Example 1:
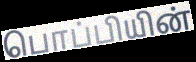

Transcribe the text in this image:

பொப்பியின்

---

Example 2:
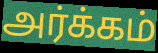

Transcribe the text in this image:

அர்க்கம்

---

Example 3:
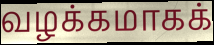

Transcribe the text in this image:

வழக்கமாகக்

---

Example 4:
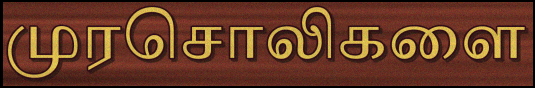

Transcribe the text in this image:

முரசொலிகளை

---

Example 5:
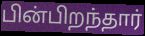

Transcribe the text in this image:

பின்பிறந்தார்